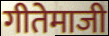
गीतेमाजी